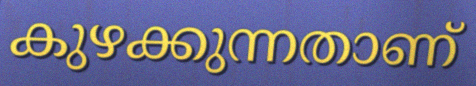
കുഴക്കുന്നതാണ്